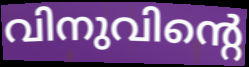
വിനുവിന്റെ